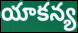
యాకన్య